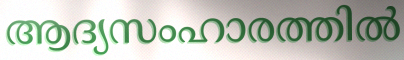
ആദ്യസംഹാരത്തിൽ